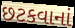
છટકવાનાં